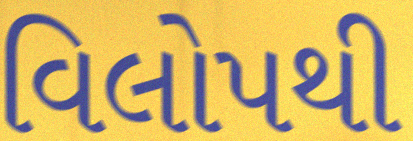
વિલોપથી